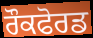
ਰੌਕਫੋਰਡ